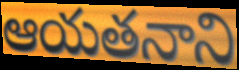
ఆయతనాని